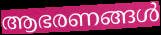
ആഭരണങ്ങൾ